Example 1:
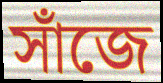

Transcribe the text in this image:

সাঁজে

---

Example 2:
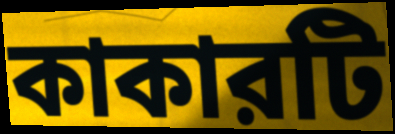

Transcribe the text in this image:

কাকারটি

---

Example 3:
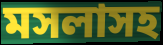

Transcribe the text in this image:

মসলাসহ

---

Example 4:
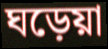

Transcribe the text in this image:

ঘড়েয়া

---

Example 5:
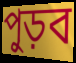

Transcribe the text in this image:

পুড়ব